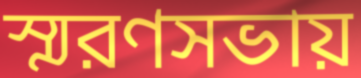
স্মরণসভায়